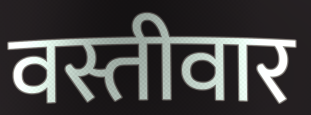
वस्तीवार